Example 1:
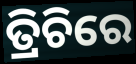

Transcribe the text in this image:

ତ୍ରିଚିରେ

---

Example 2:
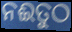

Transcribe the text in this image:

ନଈତୁଠ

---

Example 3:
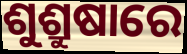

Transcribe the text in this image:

ଶୁଶ୍ରୁଷାରେ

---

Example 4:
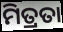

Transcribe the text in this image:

ମିତ୍ରତା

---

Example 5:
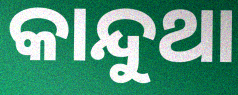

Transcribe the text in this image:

କାନ୍ଦୁଥା